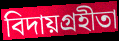
বিদায়গ্রহীতা